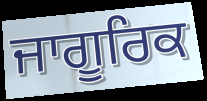
ਜਾਗੂਰਿਕ